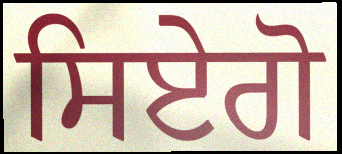
ਸਿਏਗੋ